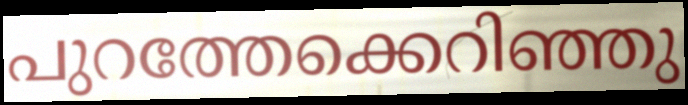
പുറത്തേക്കെറിഞ്ഞു